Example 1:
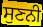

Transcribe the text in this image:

ਸੁਣਨੀ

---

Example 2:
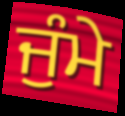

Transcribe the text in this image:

ਜੁੰਮੇ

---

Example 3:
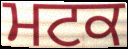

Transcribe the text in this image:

ਮਟਕ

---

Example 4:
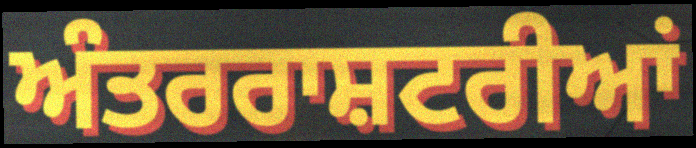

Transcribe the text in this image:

ਅੰਤਰਰਾਸ਼ਟਰੀਆਂ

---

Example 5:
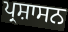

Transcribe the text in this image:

ਪ੍ਰਸ਼ਾਸਨ